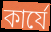
কার্যে